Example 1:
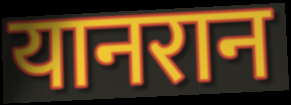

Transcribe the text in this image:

यानरान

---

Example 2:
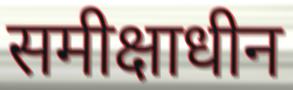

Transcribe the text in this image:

समीक्षाधीन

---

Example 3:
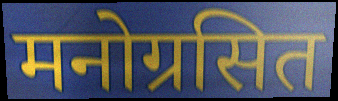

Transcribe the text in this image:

मनोग्रसित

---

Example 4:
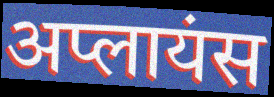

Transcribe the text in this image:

अप्‍लायंस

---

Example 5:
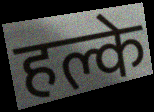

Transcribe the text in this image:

हल्के